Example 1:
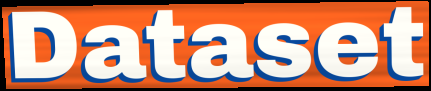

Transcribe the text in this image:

Dataset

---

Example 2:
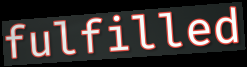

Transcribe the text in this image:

fulfilled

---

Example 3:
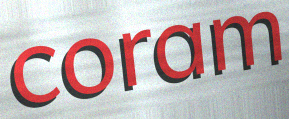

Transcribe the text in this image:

coram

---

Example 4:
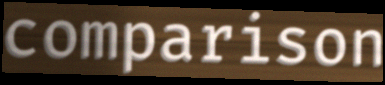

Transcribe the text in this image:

comparison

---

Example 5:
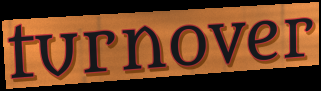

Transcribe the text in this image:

turnover